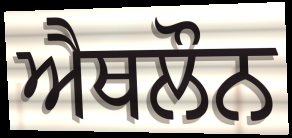
ਐਥਲੌਨ